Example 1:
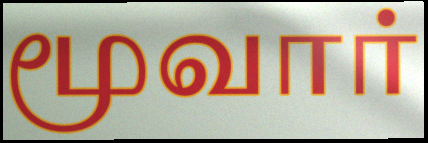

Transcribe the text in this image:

மூவார்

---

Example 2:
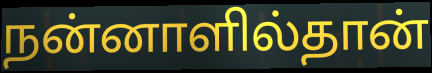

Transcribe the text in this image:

நன்னாளில்தான்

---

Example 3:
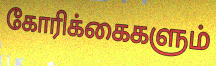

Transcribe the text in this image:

கோரிக்கைகளும்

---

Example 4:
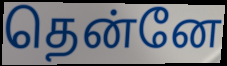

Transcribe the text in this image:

தென்னே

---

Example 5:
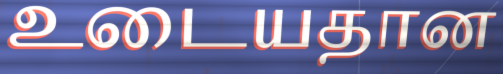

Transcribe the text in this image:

உடையதான